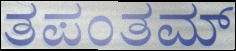
ತಪಂತಮ್